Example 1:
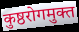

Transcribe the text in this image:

कुष्ठरोगमुक्त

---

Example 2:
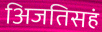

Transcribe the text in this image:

अिजतिसहं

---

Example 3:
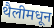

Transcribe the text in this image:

थैलीमधून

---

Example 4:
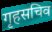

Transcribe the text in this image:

गृहसचिव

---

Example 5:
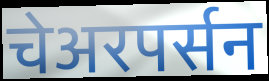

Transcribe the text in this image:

चेअरपर्सन